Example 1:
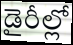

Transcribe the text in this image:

డైరీల్లో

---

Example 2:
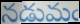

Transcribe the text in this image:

నడుమఁ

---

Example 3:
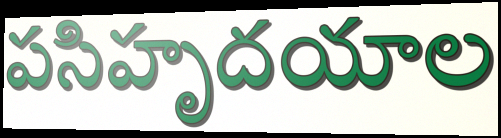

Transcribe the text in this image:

పసిహృదయాల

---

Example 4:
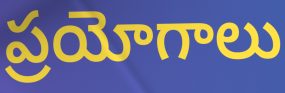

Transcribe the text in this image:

ప్రయోగాలు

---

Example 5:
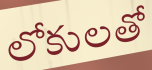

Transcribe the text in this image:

లోకులతో